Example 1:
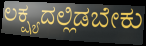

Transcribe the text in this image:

ಲಕ್ಷ್ಯದಲ್ಲಿಡಬೇಕು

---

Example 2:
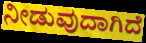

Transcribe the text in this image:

ನೀಡುವುದಾಗಿದೆ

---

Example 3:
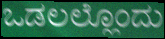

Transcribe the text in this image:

ಒಡಲಲ್ಲೊಂದು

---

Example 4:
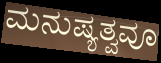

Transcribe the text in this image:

ಮನುಷ್ಯತ್ವವೂ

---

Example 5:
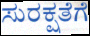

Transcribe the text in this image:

ಸುರಕ್ಷತೆಗೆ